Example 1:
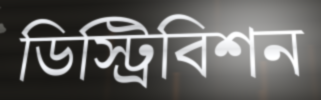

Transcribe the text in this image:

ডিস্ট্রিবিশন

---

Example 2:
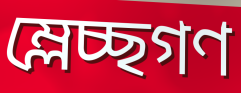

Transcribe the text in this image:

ম্লেচ্ছগণ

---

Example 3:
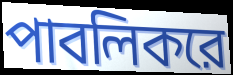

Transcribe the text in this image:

পাবলিকরে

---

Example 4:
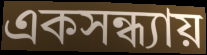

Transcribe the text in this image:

একসন্ধ্যায়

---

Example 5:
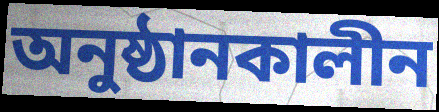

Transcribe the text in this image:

অনুষ্ঠানকালীন